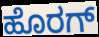
ಹೊರಗ್